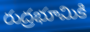
రుద్రభూమికి